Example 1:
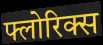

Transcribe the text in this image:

फ्लोरिक्स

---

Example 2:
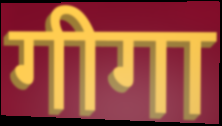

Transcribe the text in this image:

गीगा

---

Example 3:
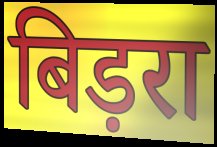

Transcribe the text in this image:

बिड़रा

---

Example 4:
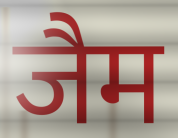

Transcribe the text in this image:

जैम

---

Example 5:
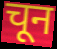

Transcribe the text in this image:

चून